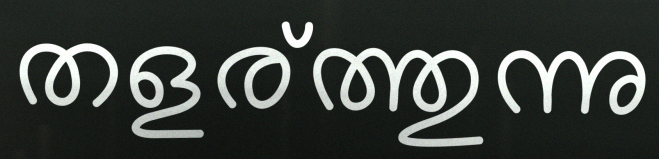
തളര്ത്തുന്നു